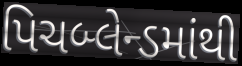
પિચબ્લેન્ડમાંથી